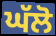
ਘੱਲੋ